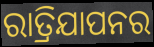
ରାତ୍ରିଯାପନର